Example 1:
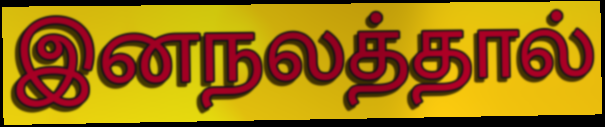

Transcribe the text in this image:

இனநலத்தால்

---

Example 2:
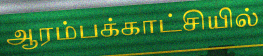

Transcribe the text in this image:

ஆரம்பக்காட்சியில்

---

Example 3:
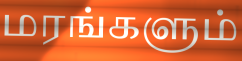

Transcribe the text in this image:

மரங்களும்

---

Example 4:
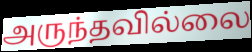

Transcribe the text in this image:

அருந்தவில்லை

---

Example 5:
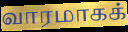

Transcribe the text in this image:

வாரமாகக்